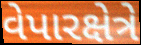
વેપારક્ષેત્રે